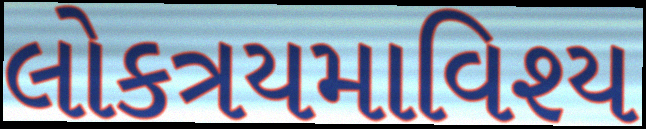
લોકત્રયમાવિશ્ય